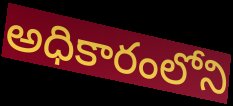
అధికారంలోని